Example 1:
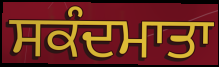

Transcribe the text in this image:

ਸਕੰਦਮਾਤਾ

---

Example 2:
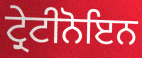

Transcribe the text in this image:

ਟ੍ਰੇਟੀਨੋਇਨ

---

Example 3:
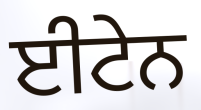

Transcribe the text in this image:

ਈਟੇਨ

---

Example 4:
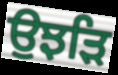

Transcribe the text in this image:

ਉਝੜਿ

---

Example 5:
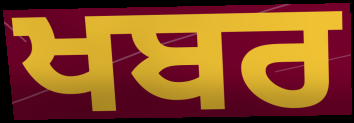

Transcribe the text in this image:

ਖਬਰ